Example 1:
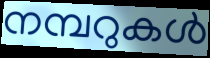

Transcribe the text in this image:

നമ്പറുകൾ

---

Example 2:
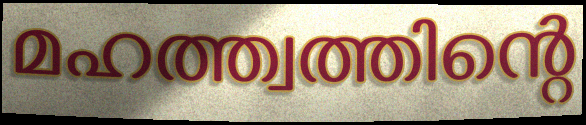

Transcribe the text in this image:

മഹത്ത്വത്തിന്റെ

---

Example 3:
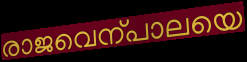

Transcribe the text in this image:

രാജവെന്പാലയെ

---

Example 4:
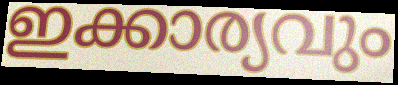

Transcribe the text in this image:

ഇക്കാര്യവും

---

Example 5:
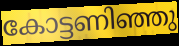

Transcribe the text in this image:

കോട്ടണിഞ്ഞു